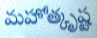
మహోత్కృష్ట